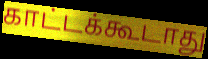
காட்டக்கூடாது